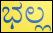
ಭಲ್ಲ